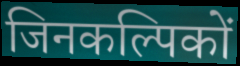
जिनकल्पिकों